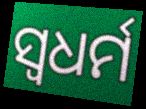
ସ୍ଵଧର୍ମ